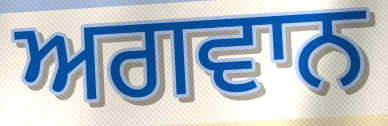
ਅਗਵਾਨ